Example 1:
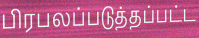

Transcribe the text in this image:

பிரபலப்படுத்தப்பட்ட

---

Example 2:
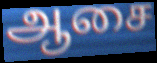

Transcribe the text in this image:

ஆசை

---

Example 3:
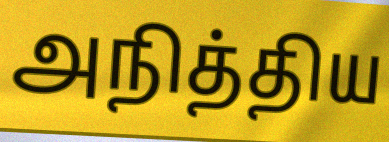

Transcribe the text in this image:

அநித்திய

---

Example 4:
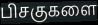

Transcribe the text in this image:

பிசகுகளை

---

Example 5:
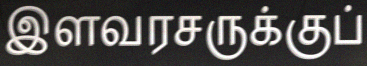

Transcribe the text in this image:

இளவரசருக்குப்